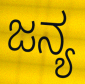
ಜನ್ಯ